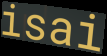
isai